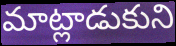
మాట్లాడుకుని